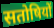
सतोषियों